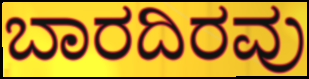
ಬಾರದಿರವು